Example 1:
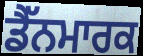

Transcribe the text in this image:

ਡੈੱਨਮਾਰਕ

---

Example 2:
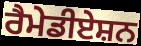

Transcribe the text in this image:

ਰੈਮੇਡੀਏਸ਼ਨ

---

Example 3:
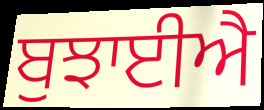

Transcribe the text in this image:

ਬੁਝਾਈਐ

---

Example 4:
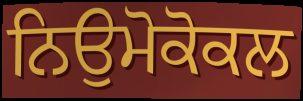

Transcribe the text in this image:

ਨਿਉਮੋਕੋਕਲ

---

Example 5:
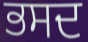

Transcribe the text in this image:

ਭਸਦ